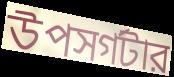
উপসর্গটার